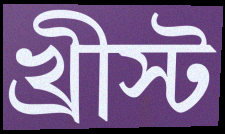
খ্রীস্ট